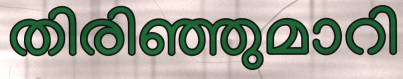
തിരിഞ്ഞുമാറി